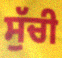
ਸੁੱਚੀ